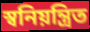
স্বনিয়ন্ত্রিত